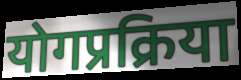
योगप्रक्रिया